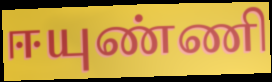
ஈயுண்ணி